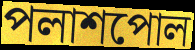
পলাশপোল